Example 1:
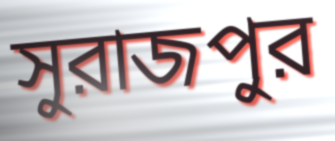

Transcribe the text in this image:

সুরাজপুর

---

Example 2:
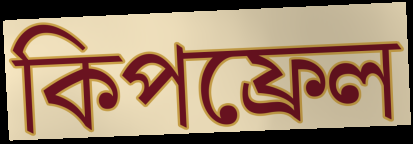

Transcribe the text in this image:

কিপফ্রেল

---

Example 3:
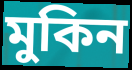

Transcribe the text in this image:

মুকিন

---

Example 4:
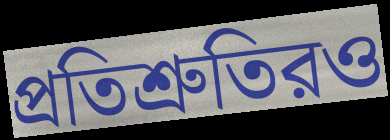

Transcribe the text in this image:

প্রতিশ্রুতিরও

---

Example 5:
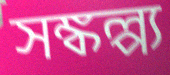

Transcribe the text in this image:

সঙ্কল্প্য